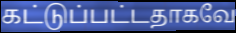
கட்டுப்பட்டதாகவே